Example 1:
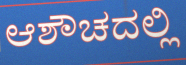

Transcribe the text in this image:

ಆಶೌಚದಲ್ಲಿ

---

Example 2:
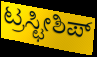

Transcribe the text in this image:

ಟ್ರಸ್ಟೀಶಿಪ್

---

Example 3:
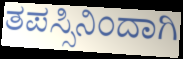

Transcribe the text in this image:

ತಪಸ್ಸಿನಿಂದಾಗಿ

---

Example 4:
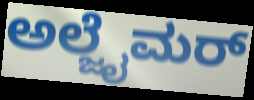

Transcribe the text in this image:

ಅಲ್ಜೈಮರ್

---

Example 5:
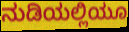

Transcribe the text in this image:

ನುಡಿಯಲ್ಲಿಯೂ